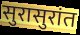
सुरासुरांत